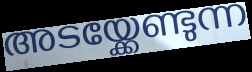
അടയ്ക്കേണ്ടുന്ന